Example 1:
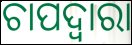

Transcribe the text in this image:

ଚାପଦ୍ବାରା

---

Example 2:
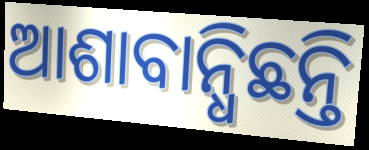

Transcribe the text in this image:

ଆଶାବାନ୍ଧିଛନ୍ତି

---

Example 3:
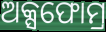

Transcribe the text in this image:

ଅକ୍ସଫୋମ୍ର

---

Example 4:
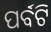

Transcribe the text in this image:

ପର୍ବଟି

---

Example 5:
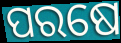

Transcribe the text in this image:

ପରଷେ